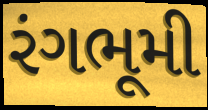
રંગભૂમી